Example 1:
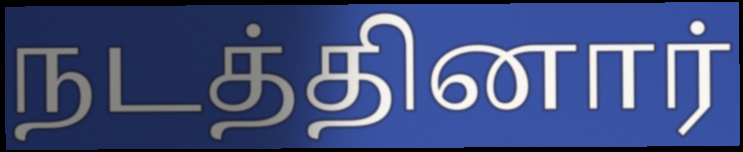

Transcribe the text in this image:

நடத்தினார்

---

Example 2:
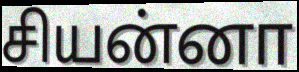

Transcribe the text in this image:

சியன்னா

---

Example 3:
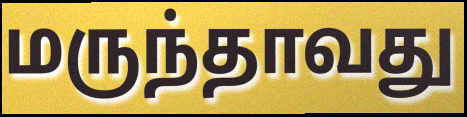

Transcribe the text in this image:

மருந்தாவது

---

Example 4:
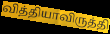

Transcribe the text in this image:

வித்தியாவிருத்தி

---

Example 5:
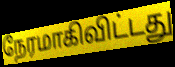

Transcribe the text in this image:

நேரமாகிவிட்டது